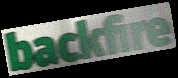
backfire